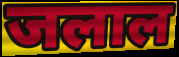
जलाल